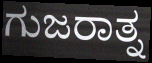
ಗುಜರಾತ್ನ